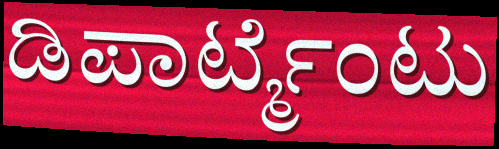
ಡಿಪಾರ್ಟ್ಮೆಂಟು